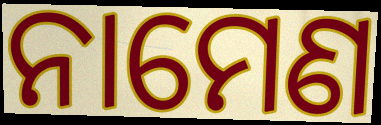
ନାମେଣ